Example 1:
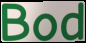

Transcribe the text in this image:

Bod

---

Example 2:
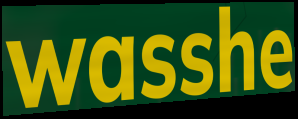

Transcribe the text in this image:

wasshe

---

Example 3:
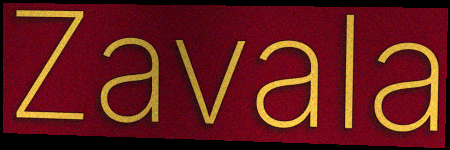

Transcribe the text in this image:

Zavala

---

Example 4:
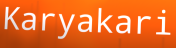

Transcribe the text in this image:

Karyakari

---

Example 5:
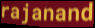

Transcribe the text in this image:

rajanand